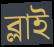
ব্লাই